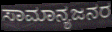
ಸಾಮಾನ್ಯಜನರ